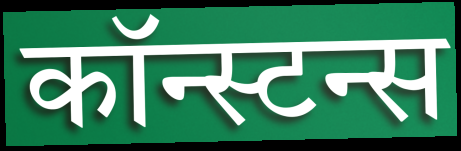
कॉन्स्टन्स